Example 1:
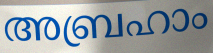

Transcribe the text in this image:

അബ്രഹാം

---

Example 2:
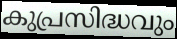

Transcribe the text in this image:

കുപ്രസിദ്ധവും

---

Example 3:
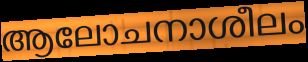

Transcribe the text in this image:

ആലോചനാശീലം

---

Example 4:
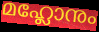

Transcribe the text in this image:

മഹ്ലോനും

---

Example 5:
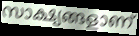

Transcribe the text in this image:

സാക്ഷ്യങ്ങളാണ്